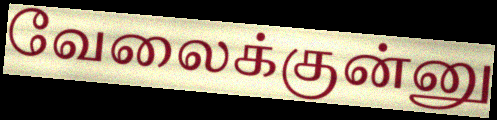
வேலைக்குன்னு